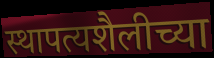
स्थापत्यशैलीच्या